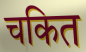
चकित